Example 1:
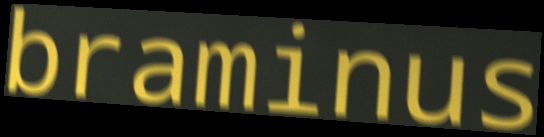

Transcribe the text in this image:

braminus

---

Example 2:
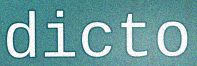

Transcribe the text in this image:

dicto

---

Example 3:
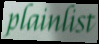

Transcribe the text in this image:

plainlist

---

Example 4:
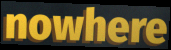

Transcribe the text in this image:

nowhere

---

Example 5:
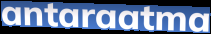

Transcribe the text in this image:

antaraatma